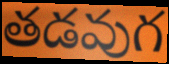
తడవుగ